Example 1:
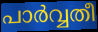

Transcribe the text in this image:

പാർവ്വതീ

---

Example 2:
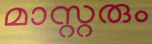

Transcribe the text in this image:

മാസ്റ്റരും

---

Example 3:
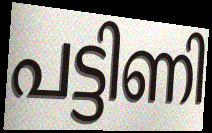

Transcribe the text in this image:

പട്ടിണി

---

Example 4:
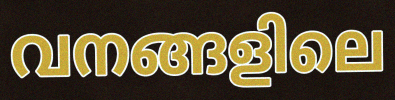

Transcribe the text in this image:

വനങ്ങളിലെ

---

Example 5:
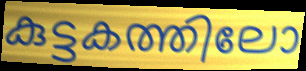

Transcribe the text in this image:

കുട്ടകത്തിലോ